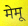
मेमू